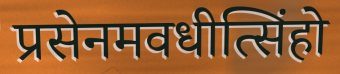
प्रसेनमवधीत्सिंहो